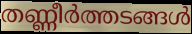
തണ്ണീർത്തടങ്ങൾ